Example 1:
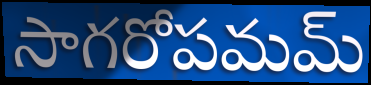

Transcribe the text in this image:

సాగరోపమమ్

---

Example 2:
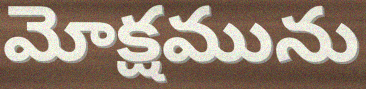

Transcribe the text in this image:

మోక్షమును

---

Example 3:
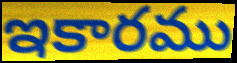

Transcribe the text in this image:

ఇకారము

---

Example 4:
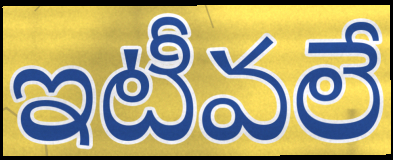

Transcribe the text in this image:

ఇటీవలే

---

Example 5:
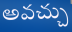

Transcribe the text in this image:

అవచ్చు